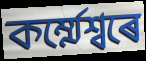
কৰ্ম্মেশ্বৰে